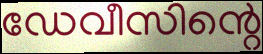
ഡേവീസിന്റെ